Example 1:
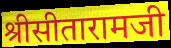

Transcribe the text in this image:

श्रीसीतारामजी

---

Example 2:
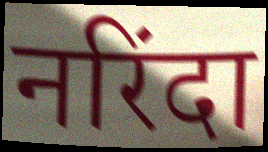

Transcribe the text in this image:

नरिंदा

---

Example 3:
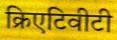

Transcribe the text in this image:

क्रिएटिवीटी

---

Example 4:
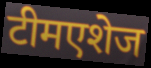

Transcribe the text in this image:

टीमएशेज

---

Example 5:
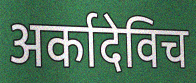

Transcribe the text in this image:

अर्कादेविच